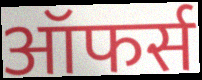
ऑफर्स